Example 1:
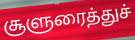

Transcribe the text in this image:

சூளுரைத்துச்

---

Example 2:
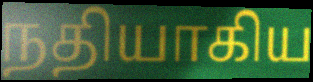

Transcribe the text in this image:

நதியாகிய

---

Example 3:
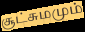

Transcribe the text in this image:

சூட்சுமமும்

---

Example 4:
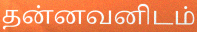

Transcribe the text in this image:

தன்னவனிடம்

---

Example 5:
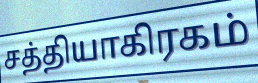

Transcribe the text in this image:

சத்தியாகிரகம்